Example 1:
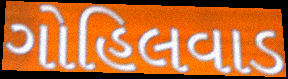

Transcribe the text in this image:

ગોહિલવાડ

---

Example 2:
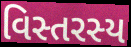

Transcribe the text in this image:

વિસ્તરસ્ય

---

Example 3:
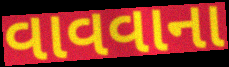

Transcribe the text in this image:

વાવવાના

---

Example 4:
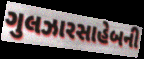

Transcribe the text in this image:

ગુલઝારસાહેબની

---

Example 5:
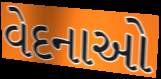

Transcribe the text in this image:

વેદનાઓ